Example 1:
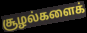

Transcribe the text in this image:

சூழல்களைக்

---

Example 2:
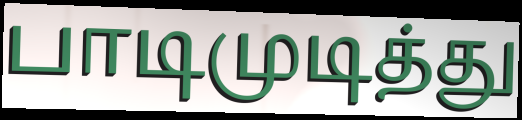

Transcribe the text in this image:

பாடிமுடித்து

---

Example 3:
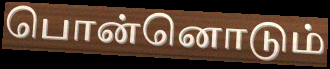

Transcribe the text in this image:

பொன்னொடும்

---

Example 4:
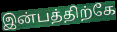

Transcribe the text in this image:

இன்பத்திற்கே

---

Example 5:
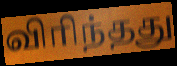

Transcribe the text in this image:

விரிந்தது